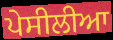
ਪੇਸੀਲੀਆ